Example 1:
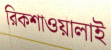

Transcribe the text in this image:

রিকশাওয়ালাই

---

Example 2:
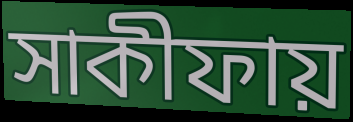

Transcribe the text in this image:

সাকীফায়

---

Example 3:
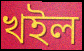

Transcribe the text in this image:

খইল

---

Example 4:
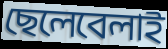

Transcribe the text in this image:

ছেলেবেলাই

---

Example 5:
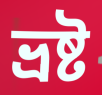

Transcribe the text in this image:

ভ্রষ্ট